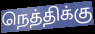
நெத்திக்கு